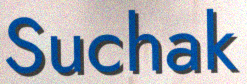
Suchak